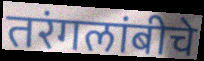
तरंगलांबीचे